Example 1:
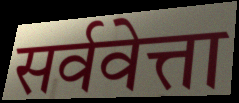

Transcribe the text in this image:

सर्ववेत्ता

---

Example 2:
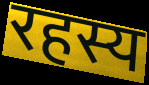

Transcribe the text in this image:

रहस्य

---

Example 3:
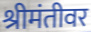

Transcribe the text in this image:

श्रीमंतीवर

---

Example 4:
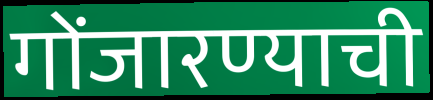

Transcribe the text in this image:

गोंजारण्याची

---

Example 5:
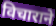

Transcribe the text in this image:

विचाराने